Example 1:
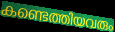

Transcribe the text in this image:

കണ്ടെത്തിയവരും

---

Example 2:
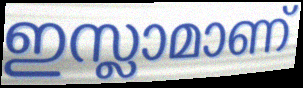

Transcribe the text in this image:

ഇസ്ലാമാണ്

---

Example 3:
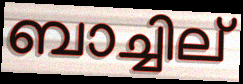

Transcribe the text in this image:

ബാച്ചില്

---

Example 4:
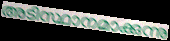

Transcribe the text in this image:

അടിസ്ഥാനമാക്കുന്നു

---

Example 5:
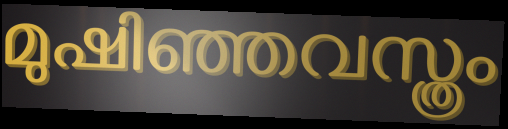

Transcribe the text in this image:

മുഷിഞ്ഞവസ്ത്രം